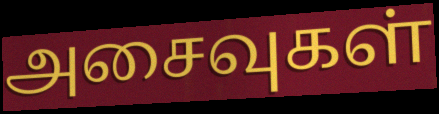
அசைவுகள்